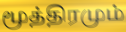
மூத்திரமும்